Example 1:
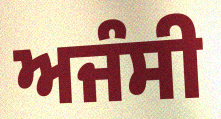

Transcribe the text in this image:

ਅਜੰਸੀ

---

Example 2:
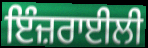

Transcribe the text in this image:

ਇੰਜ਼ਰਾਈਲੀ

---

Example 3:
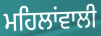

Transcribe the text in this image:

ਮਹਿਲਾਂਵਾਲੀ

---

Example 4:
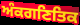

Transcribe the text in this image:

ਅੰਕਗਣਿਤਿਕ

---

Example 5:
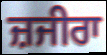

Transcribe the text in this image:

ਜ਼ਜੀਰਾ